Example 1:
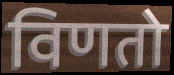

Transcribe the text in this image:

विणतो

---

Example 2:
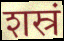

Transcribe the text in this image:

शस्रं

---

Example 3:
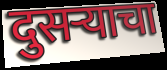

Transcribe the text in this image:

दुसऱ्याचा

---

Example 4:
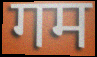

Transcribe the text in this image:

गम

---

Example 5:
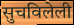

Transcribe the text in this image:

सुचविलेली